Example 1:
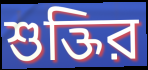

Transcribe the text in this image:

শুক্তির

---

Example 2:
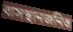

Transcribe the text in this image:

বাসস্থানজনিত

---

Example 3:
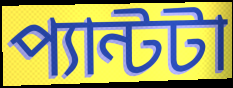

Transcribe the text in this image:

প্যান্টটা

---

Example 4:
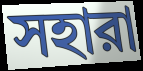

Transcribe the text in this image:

সহারা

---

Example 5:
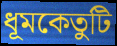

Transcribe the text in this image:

ধূমকেতুটি